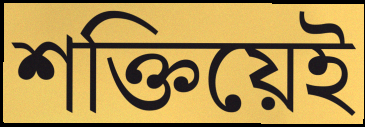
শক্তিয়েই